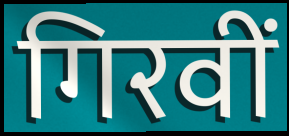
गिरवीं